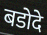
बडोदे